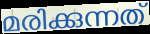
മരിക്കുന്നത്